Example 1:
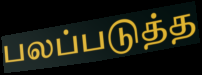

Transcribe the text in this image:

பலப்படுத்த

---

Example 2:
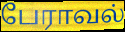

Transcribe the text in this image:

பேராவல்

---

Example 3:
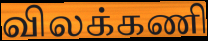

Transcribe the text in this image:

விலக்கணி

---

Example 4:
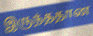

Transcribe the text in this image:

இருந்ததான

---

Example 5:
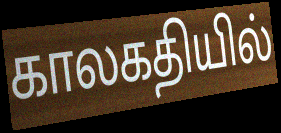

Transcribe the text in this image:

காலகதியில்